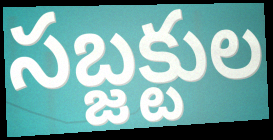
సబ్జక్టుల